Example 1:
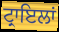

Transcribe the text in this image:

ਟ੍ਰਾਇਲਾਂ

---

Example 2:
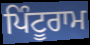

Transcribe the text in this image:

ਪਿੰਟੂਰਾਮ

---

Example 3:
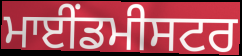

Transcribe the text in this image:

ਮਾਈਂਡਮੀਸਟਰ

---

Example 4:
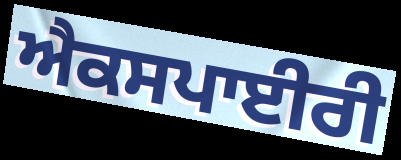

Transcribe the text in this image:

ਐਕਸਪਾਈਰੀ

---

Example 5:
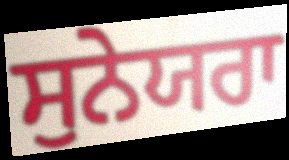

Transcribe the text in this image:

ਸੁਨੇਯਰਾ